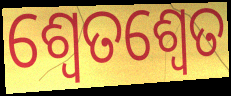
ଶ୍ବେତଶ୍ଵେତ